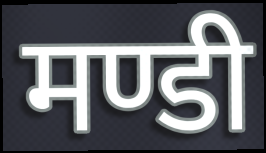
मण्डी